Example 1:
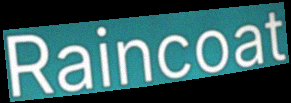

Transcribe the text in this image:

Raincoat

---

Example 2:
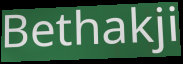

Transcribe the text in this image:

Bethakji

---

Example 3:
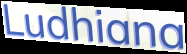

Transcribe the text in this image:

Ludhiana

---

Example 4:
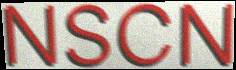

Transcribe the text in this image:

NSCN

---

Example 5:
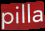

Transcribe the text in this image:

pilla